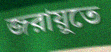
জরায়ুতে